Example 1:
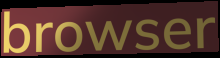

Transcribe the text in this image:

browser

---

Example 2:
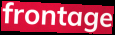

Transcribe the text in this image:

frontage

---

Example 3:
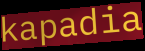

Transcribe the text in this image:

kapadia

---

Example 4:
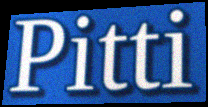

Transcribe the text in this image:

Pitti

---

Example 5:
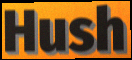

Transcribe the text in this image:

Hush